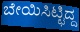
ಬೇಯಿಸಿಟ್ಟಿದ್ದ